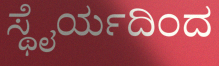
ಸ್ಥೈರ್ಯದಿಂದ